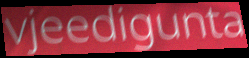
vjeedigunta